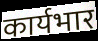
कार्यभार